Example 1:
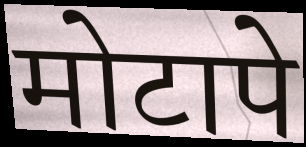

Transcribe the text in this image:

मोटापे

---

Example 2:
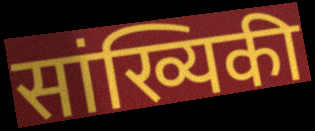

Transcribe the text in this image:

सांख्यिकी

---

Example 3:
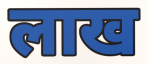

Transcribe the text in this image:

लाख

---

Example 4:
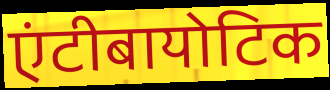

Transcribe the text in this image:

एंटीबायोटिक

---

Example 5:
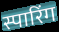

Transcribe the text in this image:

स्पारिंग